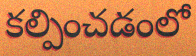
కల్పించడంలో